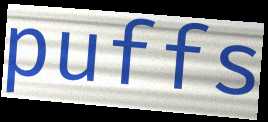
puffs